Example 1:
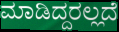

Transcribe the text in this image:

ಮಾಡಿದ್ದರಲ್ಲದೆ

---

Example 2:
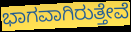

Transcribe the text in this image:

ಭಾಗವಾಗಿರುತ್ತೇವೆ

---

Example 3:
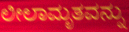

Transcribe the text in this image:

ಲೀಲಾಮೃತವನ್ನು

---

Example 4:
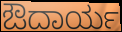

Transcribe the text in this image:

ಔದಾರ್ಯ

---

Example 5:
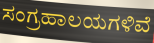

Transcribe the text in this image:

ಸಂಗ್ರಹಾಲಯಗಳಿವೆ